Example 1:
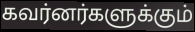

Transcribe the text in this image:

கவர்னர்களுக்கும்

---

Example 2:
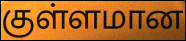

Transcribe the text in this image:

குள்ளமான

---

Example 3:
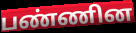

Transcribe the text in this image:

பண்ணின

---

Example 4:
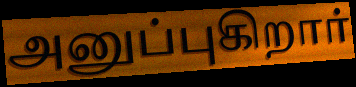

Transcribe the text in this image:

அனுப்புகிறார்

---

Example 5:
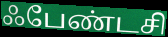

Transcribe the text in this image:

ஃபேண்டசி